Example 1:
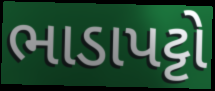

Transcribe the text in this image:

ભાડાપટ્ટો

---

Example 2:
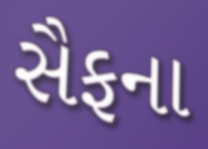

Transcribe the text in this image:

સૈફના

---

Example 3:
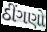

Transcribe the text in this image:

ઠીંગણો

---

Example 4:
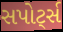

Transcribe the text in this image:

સપોર્ટ્સ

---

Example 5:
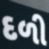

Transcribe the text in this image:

દળી